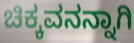
ಚಿಕ್ಕವನನ್ನಾಗಿ